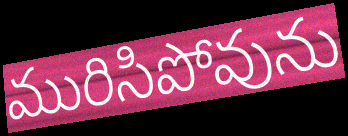
మురిసిపోవును